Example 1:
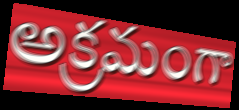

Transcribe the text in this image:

అక్రమంగా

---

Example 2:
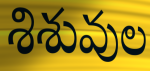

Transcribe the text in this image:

శిశువుల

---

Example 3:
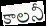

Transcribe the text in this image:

కాలనీ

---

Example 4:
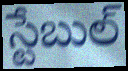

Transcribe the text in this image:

స్టేబుల్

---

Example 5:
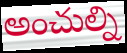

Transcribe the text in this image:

అంచుల్ని